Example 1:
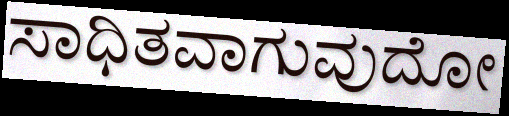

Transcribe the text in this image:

ಸಾಧಿತವಾಗುವುದೋ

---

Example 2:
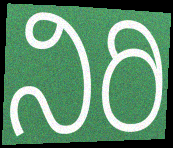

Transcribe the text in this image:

ನಿರಿ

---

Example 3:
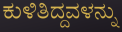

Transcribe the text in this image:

ಕುಳಿತಿದ್ದವಳನ್ನು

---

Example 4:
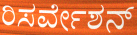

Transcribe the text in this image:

ರಿಸರ್ವೇಶನ್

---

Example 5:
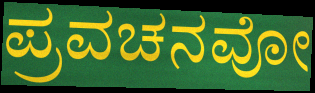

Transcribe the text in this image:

ಪ್ರವಚನವೋ